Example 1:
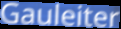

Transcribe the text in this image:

Gauleiter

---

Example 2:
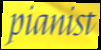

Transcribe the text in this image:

pianist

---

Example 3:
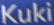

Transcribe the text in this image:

Kuki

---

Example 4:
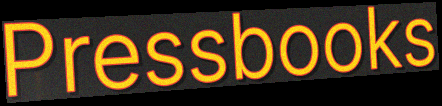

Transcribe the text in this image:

Pressbooks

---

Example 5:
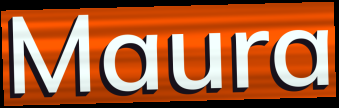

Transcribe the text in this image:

Maura